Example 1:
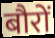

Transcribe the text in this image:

बौरों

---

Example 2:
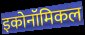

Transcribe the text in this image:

इकोनॉमिकल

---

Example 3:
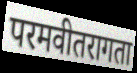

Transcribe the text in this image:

परमवीतरागता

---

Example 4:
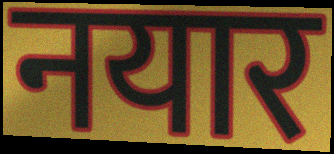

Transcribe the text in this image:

नयार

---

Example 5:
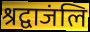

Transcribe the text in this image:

श्रद्वाजंलि